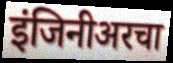
इंजिनीअरचा